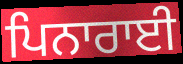
ਪਿਨਾਰਾਈ